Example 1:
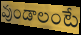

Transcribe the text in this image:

వుండాలంటే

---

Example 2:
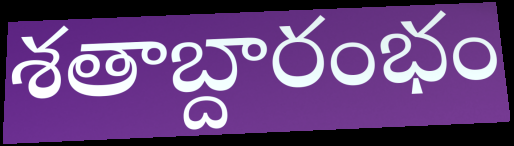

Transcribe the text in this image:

శతాబ్దారంభం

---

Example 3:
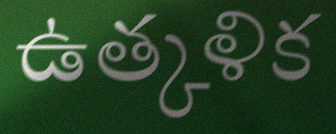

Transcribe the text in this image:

ఉత్కళిక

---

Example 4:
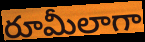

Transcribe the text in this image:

రూమీలాగా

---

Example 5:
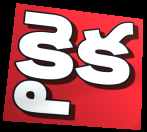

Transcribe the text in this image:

కైక